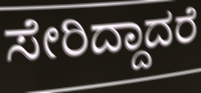
ಸೇರಿದ್ದಾದರೆ